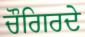
ਚੌਗਿਰਦੇ